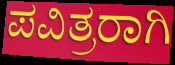
ಪವಿತ್ರರಾಗಿ